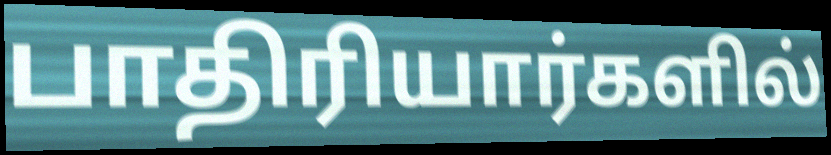
பாதிரியார்களில்